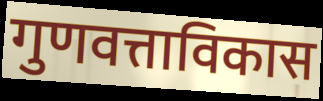
गुणवत्ताविकास